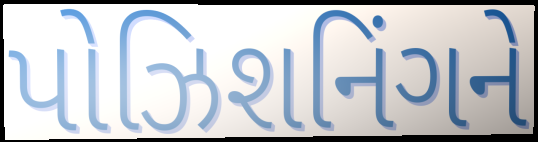
પોઝિશનિંગને